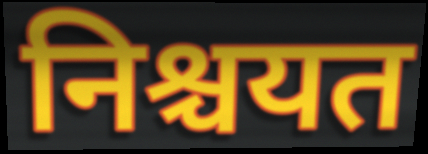
निश्चयत